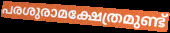
പരശുരാമക്ഷേത്രമുണ്ട്